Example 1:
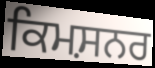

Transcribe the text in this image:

ਕਿਮ਼ਸਨਰ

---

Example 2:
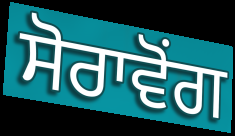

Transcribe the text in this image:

ਸੋਰਾਵੋਂਗ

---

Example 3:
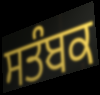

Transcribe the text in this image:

ਸਤੰਬਕ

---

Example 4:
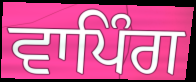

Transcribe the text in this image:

ਵਾਪਿੰਗ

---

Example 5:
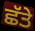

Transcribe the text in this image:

ਛੱਤੇ